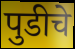
पुडीचे